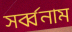
সৰ্ব্বনাম